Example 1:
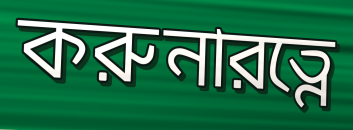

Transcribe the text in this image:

করুনারত্নে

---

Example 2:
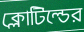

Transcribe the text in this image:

ক্লোটিল্ডের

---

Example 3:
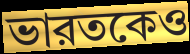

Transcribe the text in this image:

ভারতকেও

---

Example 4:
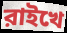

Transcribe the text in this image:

রাইখে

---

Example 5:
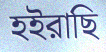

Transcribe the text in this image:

হইরাছি